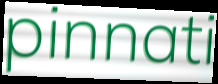
pinnati